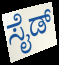
ಸೈಡ್